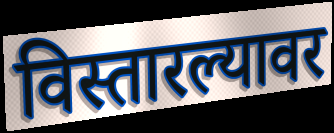
विस्तारल्यावर